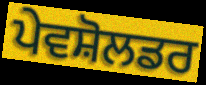
ਪੇਵਸ਼ੋਲਡਰ